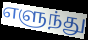
எளுந்து